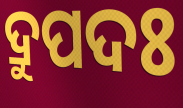
ଦ୍ରୁପଦଃ